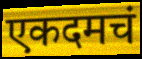
एकदमचं